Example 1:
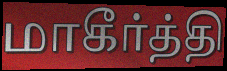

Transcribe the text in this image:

மாகீர்த்தி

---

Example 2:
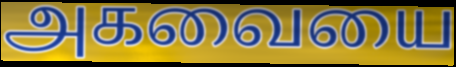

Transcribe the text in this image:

அகவையை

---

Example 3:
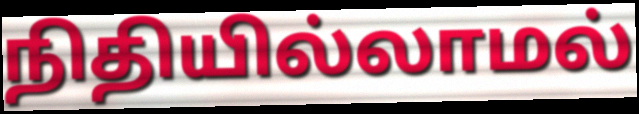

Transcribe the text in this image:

நிதியில்லாமல்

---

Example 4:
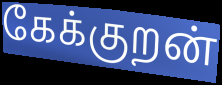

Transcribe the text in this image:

கேக்குறன்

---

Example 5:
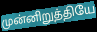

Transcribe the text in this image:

முன்னிறுத்தியே